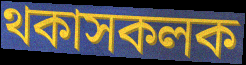
থকাসকলক